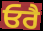
ਓਰੈ